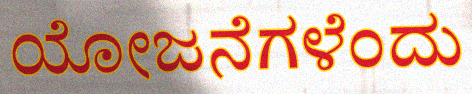
ಯೋಜನೆಗಳೆಂದು